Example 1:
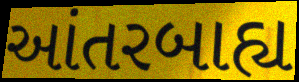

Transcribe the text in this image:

આંતરબાહ્ય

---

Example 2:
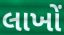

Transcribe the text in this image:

લાખોં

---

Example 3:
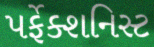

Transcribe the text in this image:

પર્ફેક્શનિસ્ટ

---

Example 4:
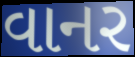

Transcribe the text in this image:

વાનર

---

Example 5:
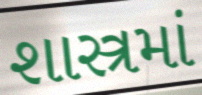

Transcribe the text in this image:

શાસ્ત્રમાં